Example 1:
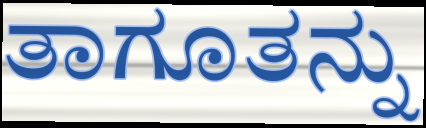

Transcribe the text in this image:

ತಾಗೂತನ್ನು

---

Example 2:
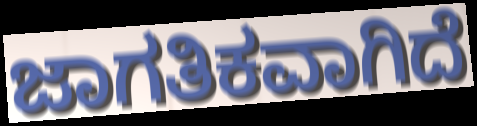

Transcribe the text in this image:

ಜಾಗತಿಕವಾಗಿದೆ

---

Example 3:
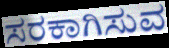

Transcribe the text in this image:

ಸರಕಾಗಿಸುವ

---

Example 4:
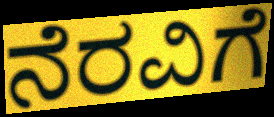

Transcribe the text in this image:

ನೆರವಿಗೆ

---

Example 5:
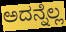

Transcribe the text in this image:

ಅದನ್ನೆಲ್ಲ